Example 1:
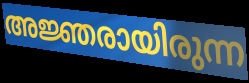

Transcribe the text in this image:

അജ്ഞരായിരുന്ന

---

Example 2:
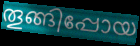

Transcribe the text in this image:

തൂങ്ങിപ്പോയ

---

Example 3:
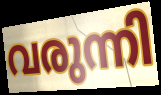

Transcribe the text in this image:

വരുന്നി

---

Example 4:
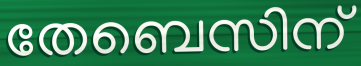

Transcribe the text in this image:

തേബെസിന്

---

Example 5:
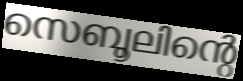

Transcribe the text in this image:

സെബൂലിന്റെ